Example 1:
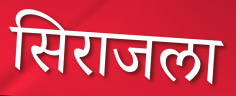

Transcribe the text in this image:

सिराजला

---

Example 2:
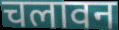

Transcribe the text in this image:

चलावन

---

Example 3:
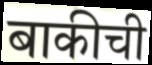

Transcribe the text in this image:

बाकीची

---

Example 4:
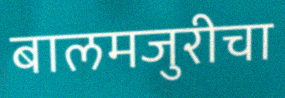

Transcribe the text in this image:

बालमजुरीचा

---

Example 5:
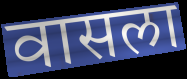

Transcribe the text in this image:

वासला